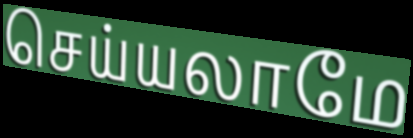
செய்யலாமே